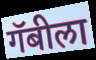
गॅबीला